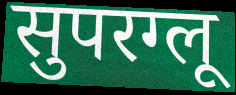
सुपरग्लू